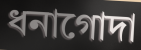
ধনাগোদা